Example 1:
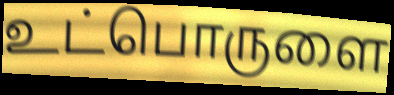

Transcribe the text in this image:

உட்பொருளை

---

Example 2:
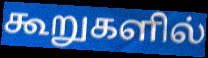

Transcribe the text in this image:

கூறுகளில்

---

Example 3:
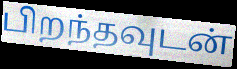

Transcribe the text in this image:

பிறந்தவுடன்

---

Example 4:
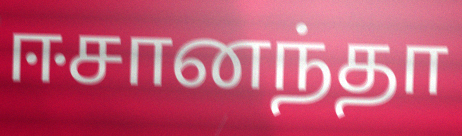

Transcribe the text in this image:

ஈசானந்தா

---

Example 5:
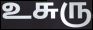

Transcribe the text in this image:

உசுரு